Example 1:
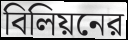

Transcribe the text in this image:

বিলিয়নের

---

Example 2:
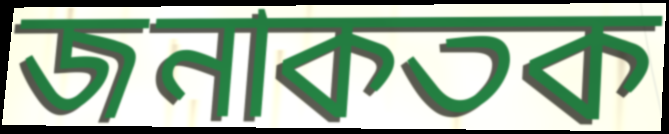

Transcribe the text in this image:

জনাকতক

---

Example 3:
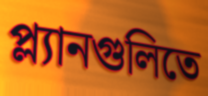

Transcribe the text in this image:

প্ল্যানগুলিতে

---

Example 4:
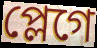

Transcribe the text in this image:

প্লেগে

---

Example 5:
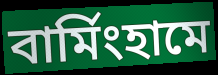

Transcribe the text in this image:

বার্মিংহামে